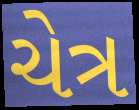
ચેત્ર